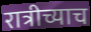
रात्रीच्याच